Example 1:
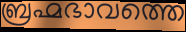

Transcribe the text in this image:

ബ്രഹ്മഭാവത്തെ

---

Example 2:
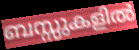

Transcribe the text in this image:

ബസ്സുകളിൽ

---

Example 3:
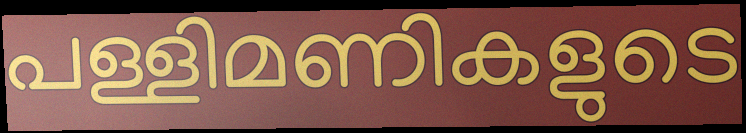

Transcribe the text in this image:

പള്ളിമണികളുടെ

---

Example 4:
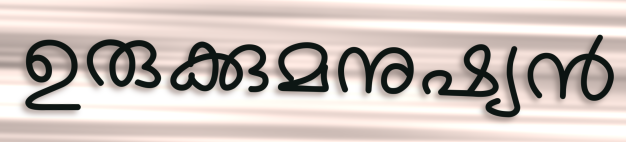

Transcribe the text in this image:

ഉരുക്കുമനുഷ്യൻ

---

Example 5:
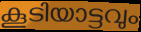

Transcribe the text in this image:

കൂടിയാട്ടവും